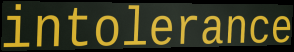
intolerance